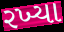
રખ્યા